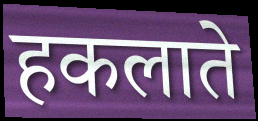
हकलाते